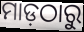
ମାଡ଼ଠାରୁ